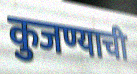
कुजण्याची